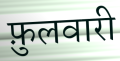
फ़ुलवारी